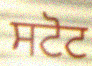
ਸਟੋਟ